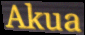
Akua